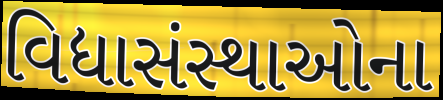
વિદ્યાસંસ્થાઓના